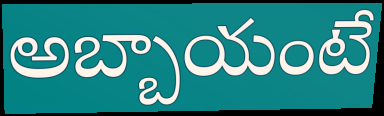
అబ్బాయంటే